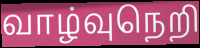
வாழ்வுநெறி